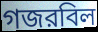
গজরবিল